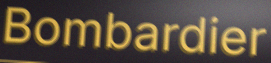
Bombardier